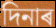
দিনাৰ